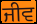
ਜੀਵ